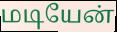
மடியேன்